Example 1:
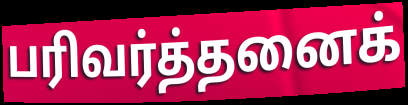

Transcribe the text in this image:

பரிவர்த்தனைக்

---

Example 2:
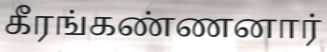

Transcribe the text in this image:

கீரங்கண்ணனார்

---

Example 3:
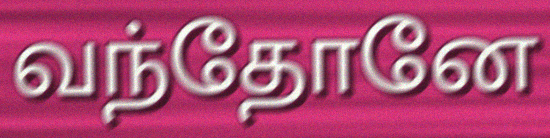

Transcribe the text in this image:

வந்தோனே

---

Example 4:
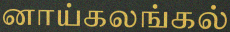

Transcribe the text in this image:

னாய்கலங்கல்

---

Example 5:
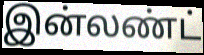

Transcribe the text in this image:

இன்லண்ட்